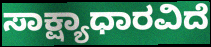
ಸಾಕ್ಷ್ಯಾಧಾರವಿದೆ